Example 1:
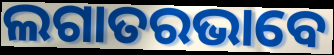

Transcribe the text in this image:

ଲଗାତରଭାବେ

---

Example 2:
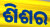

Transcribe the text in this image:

ଶିଶର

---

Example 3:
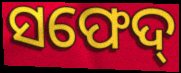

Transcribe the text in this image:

ସଫେଦ୍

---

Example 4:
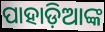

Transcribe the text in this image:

ପାହାଡ଼ିଆଙ୍କ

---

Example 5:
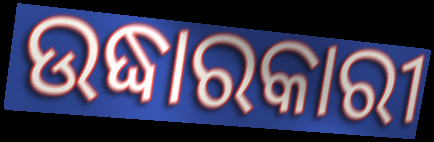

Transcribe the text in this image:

ଉଦ୍ଧାରକାରୀ